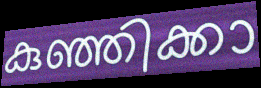
കുഞ്ഞിക്കാ